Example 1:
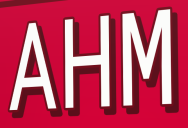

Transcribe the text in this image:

AHM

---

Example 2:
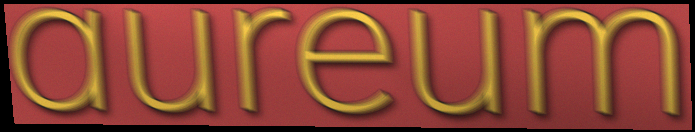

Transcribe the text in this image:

aureum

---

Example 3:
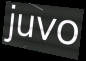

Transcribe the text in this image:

juvo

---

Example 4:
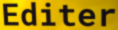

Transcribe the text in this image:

Editer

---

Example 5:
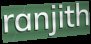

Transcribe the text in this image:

ranjith